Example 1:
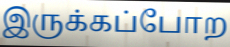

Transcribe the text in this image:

இருக்கப்போற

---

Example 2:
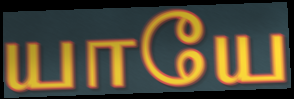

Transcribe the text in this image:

யாயே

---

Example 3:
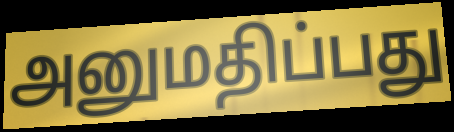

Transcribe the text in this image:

அனுமதிப்பது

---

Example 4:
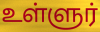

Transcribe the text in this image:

உள்ளுர்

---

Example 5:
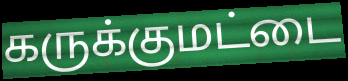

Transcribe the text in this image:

கருக்குமட்டை